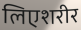
लिएशरीर